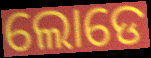
ଲୋଡେ